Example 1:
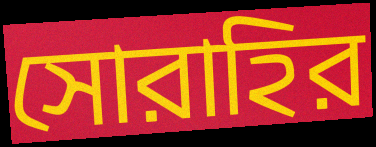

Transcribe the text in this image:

সোরাহির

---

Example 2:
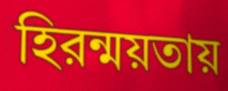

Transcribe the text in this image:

হিরন্ময়তায়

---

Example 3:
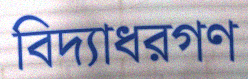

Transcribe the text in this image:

বিদ্যাধরগণ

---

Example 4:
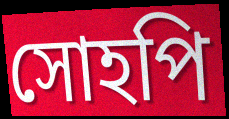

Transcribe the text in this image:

সোহপি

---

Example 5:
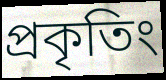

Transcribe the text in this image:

প্রকৃতিং